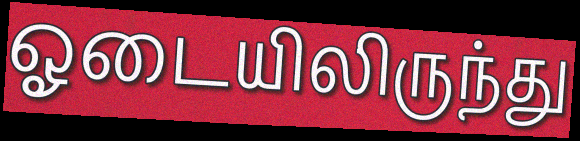
ஓடையிலிருந்து